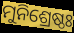
ମୁନିଶ୍ରେଷ୍ଠଃ